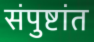
संपुष्टांत